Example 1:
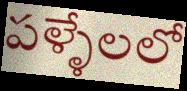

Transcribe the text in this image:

పళ్ళేలలో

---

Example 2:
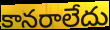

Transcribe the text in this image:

కానరాలేదు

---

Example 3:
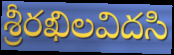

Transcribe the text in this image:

శ్రీరఖిలవిదసి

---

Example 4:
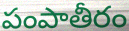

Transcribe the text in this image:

పంపాతీరం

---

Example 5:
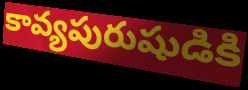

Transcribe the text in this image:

కావ్యపురుషుడికి